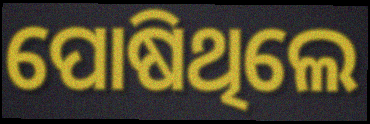
ପୋଷିଥିଲେ